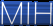
MIH